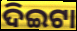
ଦିଇଟା